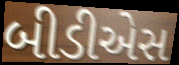
બીડીએસ